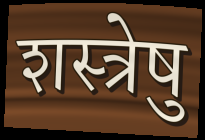
शस्त्रेषु